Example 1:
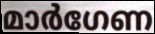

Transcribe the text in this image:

മാർഗേണ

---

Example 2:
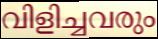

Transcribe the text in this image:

വിളിച്ചവരും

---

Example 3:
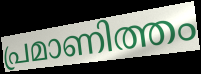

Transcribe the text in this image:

പ്രമാണിത്തം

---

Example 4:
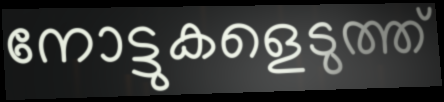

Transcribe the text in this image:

നോട്ടുകളെടുത്ത്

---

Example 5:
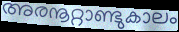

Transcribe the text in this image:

അരനൂറ്റാണ്ടുകാലം